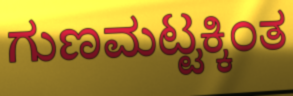
ಗುಣಮಟ್ಟಕ್ಕಿಂತ